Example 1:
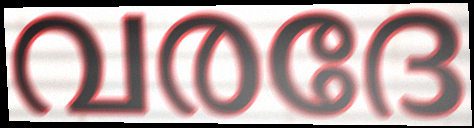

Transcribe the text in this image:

വരദേ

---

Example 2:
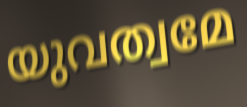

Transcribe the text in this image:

യുവത്വമേ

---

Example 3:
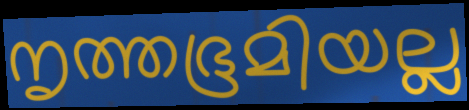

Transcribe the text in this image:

നൃത്തഭൂമിയല്ല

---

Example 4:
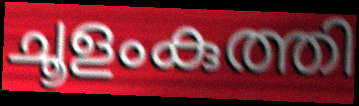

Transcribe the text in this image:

ചൂളംകുത്തി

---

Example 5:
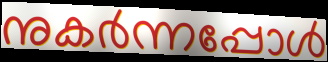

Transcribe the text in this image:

നുകർന്നപ്പോൾ